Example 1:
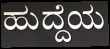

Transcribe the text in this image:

ಹುದ್ದೆಯ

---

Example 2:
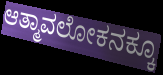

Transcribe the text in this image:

ಆತ್ಮಾವಲೋಕನಕ್ಕೂ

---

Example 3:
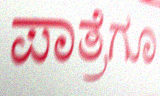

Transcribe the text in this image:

ಪಾತ್ರೆಗೂ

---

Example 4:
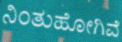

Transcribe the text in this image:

ನಿಂತುಹೋಗಿವೆ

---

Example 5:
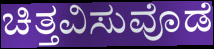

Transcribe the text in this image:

ಚಿತ್ತವಿಸುವೊಡೆ